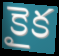
కైక